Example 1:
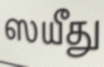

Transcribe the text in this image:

ஸயீது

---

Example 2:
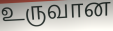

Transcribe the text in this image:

உருவான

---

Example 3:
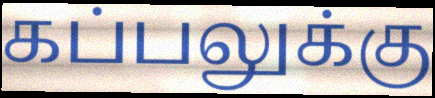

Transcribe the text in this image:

கப்பலுக்கு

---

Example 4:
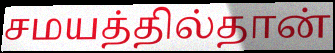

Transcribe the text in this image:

சமயத்தில்தான்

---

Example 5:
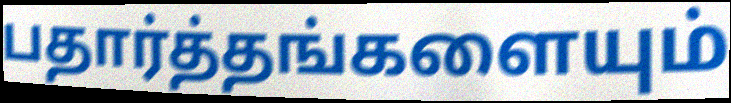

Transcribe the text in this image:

பதார்த்தங்களையும்